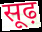
सूढ़